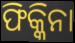
ଫିକ୍କିନା